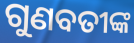
ଗୁଣବତୀଙ୍କ